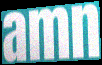
amn